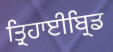
ਤ੍ਰਿਹਾਈਬ੍ਰਿਡ